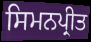
ਸਿਮਨਪ੍ਰੀਤ